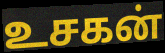
உசகன்